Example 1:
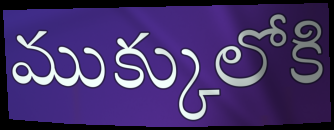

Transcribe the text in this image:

ముక్కులోకి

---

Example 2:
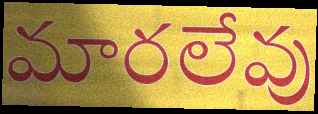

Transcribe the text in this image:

మారలేవు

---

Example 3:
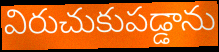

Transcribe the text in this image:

విరుచుకుపడ్డాను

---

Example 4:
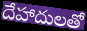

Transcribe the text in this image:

దేహాదులతో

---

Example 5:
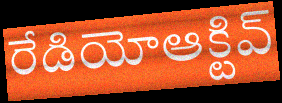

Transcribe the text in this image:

రేడియోఆక్టివ్